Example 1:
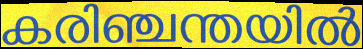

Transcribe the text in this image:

കരിഞ്ചന്തയിൽ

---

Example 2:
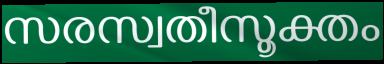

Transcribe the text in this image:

സരസ്വതീസൂക്തം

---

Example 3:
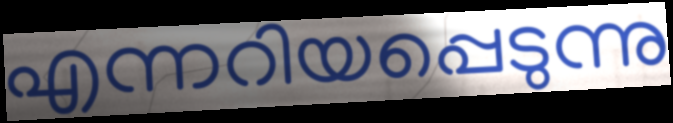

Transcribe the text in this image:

എന്നറിയപ്പെടുന്നു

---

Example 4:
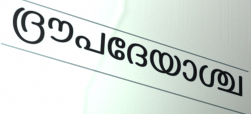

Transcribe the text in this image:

ദ്രൗപദേയാശ്ച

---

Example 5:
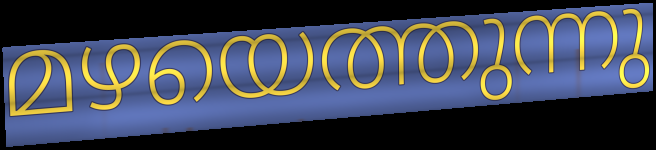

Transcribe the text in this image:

മഴയെത്തുന്നു